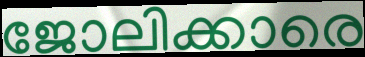
ജോലിക്കാരെ